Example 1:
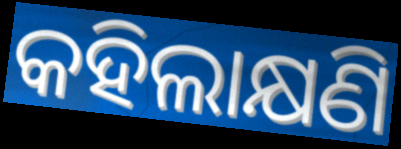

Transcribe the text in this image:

କହିଲାକ୍ଷଣି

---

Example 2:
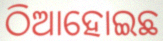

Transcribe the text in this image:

ଠିଆହୋଇଛ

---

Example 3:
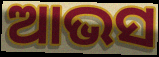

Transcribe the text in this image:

ଆଭସ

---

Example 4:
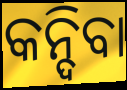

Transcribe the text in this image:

କନ୍ଦିବା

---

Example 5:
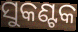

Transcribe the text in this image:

ସୁକଣ୍ଟକ